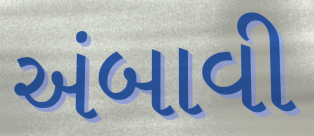
અંબાવી